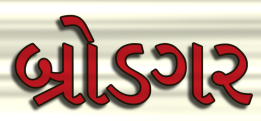
બ્રોડગર